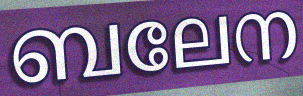
ബലേന